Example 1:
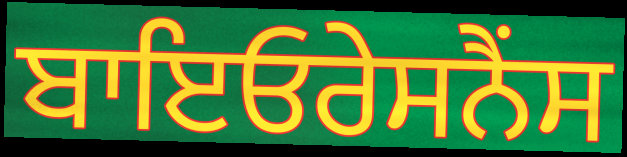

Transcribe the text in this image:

ਬਾਇਓਰੇਸਨੈਂਸ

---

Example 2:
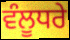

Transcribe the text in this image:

ਵੰਲੂਧਰੇ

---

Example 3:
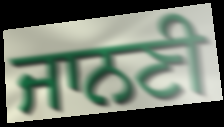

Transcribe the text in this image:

ਜਾਨਣੀ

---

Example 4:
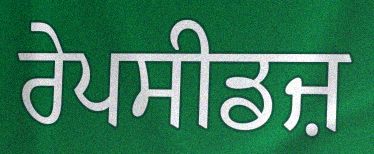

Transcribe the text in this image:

ਰੇਪਸੀਡਜ਼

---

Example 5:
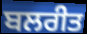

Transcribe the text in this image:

ਬਲਰੀਤ